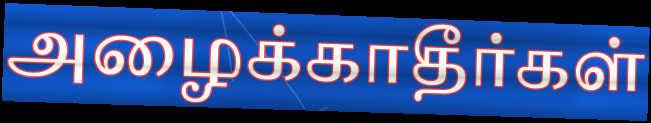
அழைக்காதீர்கள்